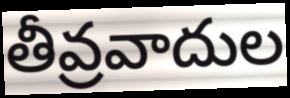
తీవ్రవాదుల